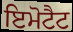
ਇਮੋਟੈਟ